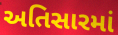
અતિસારમાં